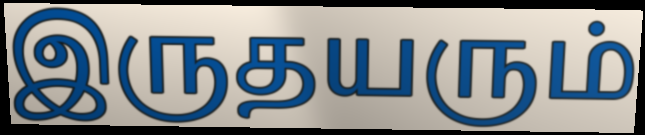
இருதயரும்